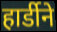
हार्डीने